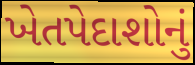
ખેતપેદાશોનું